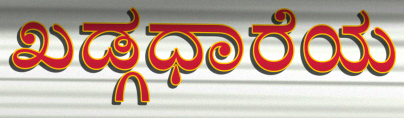
ಖಡ್ಗಧಾರೆಯ